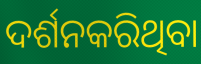
ଦର୍ଶନକରିଥିବା